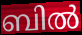
ബിൽ